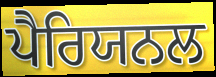
ਪੈਰਿਯਨਲ